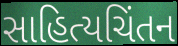
સાહિત્યચિંતન